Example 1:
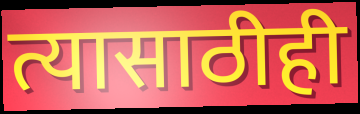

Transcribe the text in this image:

त्यासाठीही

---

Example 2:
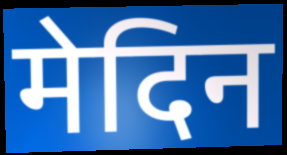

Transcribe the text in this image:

मेदिन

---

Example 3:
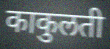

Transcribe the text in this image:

काकुलती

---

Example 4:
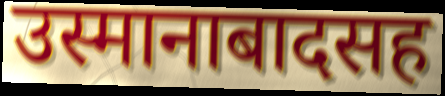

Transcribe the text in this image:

उस्मानाबादसह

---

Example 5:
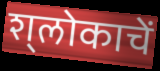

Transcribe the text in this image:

श्लोकाचें